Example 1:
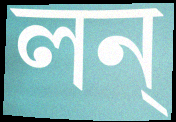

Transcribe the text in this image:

লন্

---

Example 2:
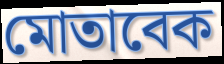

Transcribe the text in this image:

মোতাবেক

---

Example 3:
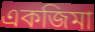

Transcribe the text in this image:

একজিমা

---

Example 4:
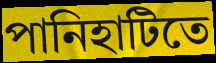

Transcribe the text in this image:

পানিহাটিতে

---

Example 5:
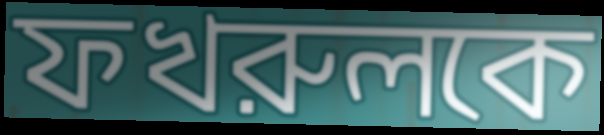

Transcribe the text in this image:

ফখরুলকে